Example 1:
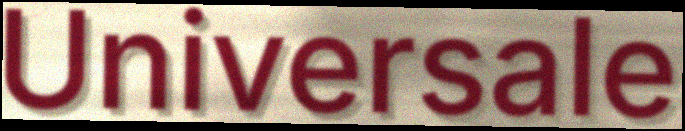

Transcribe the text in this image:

Universale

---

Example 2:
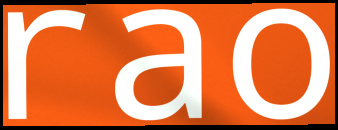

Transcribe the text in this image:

rao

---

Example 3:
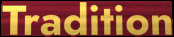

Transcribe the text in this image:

Tradition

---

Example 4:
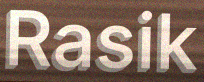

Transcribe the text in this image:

Rasik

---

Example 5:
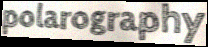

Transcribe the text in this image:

polarography